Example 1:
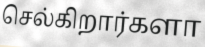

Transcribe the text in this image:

செல்கிறார்களா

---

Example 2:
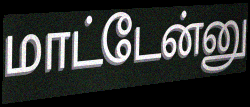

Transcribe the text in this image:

மாட்டேன்னு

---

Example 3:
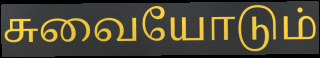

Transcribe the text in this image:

சுவையோடும்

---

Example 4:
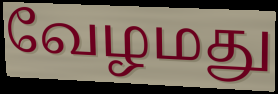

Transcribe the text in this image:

வேழமது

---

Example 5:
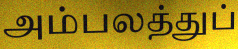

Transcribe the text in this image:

அம்பலத்துப்